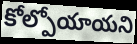
కోల్పోయాయని